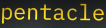
pentacle